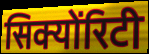
सिक्योंरिटी